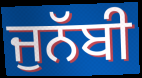
ਜੁਨੱਬੀ